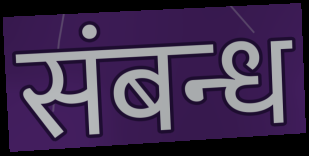
संबन्ध